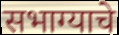
सभाग्याचे